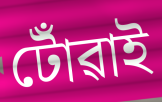
টোঁৱাই